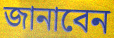
জানাবেন